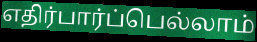
எதிர்பார்ப்பெல்லாம்